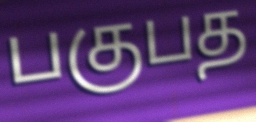
பகுபத